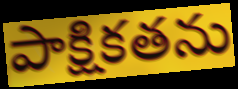
పాక్షికతను